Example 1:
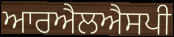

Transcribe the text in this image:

ਆਰਐਲਐਸਪੀ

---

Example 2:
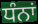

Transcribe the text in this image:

ਧੰਨਾਂ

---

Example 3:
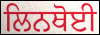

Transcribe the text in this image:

ਲਿਨਥੋਈ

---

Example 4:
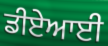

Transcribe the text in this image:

ਡੀਏਆਈ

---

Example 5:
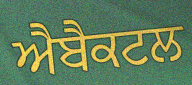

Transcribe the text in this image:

ਐਬੈਕਟਲ